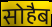
सोहैब